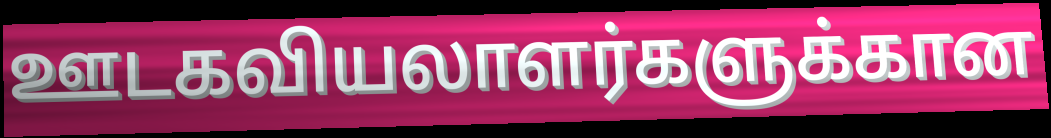
ஊடகவியலாளர்களுக்கான